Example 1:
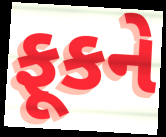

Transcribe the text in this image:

ફૂકને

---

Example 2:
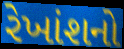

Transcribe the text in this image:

રેખાંશનો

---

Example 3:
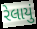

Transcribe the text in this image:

રેલાયું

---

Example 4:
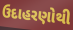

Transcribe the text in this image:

ઉદાહરણોથી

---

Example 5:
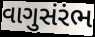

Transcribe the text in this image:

વાગુસંરંભ